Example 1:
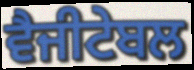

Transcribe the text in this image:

ਵੈਜੀਟੇਬਲ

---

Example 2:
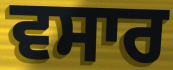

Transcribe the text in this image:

ਵਸਾਰ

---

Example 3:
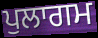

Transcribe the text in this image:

ਪੁਲਾਗਮ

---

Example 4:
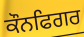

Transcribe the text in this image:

ਕੌਨਫਿਗਰ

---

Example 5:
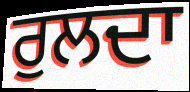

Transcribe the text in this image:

ਰੁਲਦਾ